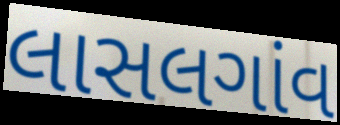
લાસલગાંવ